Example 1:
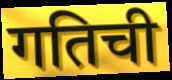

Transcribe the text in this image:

गतिची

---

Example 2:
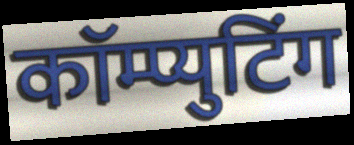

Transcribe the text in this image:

कॉम्प्युटिंग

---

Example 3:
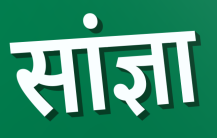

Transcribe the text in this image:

सांज्ञा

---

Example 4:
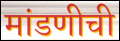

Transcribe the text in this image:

मांडणीची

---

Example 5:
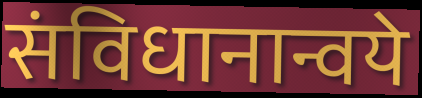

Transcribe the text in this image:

संविधानान्वये